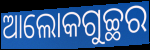
ଆଲୋକଗୁଚ୍ଛର